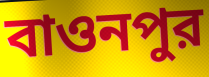
বাওনপুর